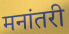
मनांतरी